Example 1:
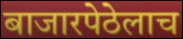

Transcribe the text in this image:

बाजारपेठेलाच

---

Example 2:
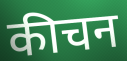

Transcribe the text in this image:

कीचन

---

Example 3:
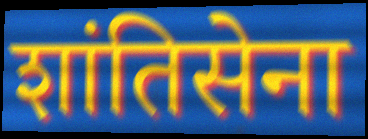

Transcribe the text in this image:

शांतिसेना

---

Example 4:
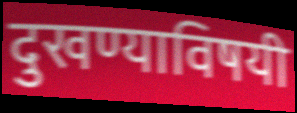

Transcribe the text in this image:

दुखण्याविषयी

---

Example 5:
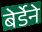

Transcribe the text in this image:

बेर्डेने